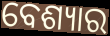
ବେଶ୍ୟାର